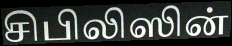
சிபிலிஸின்